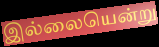
இல்லையென்று